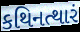
કથિનત્થારં